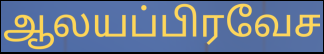
ஆலயப்பிரவேச